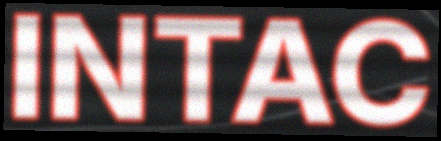
INTAC